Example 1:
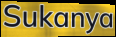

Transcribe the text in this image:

Sukanya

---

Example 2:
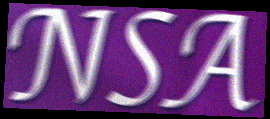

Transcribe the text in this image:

NSA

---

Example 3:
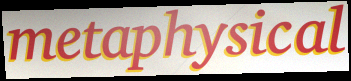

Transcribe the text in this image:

metaphysical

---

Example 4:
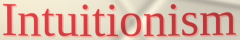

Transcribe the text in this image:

Intuitionism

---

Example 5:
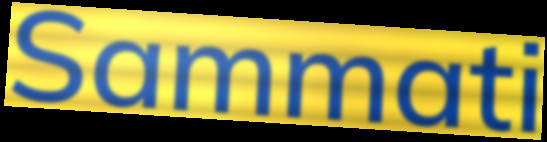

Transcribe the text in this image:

Sammati